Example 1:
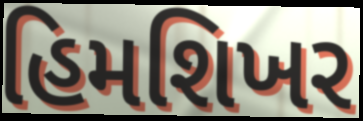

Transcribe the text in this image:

હિમશિખર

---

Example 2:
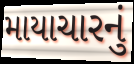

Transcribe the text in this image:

માયાચારનું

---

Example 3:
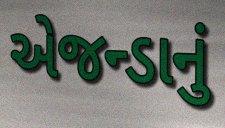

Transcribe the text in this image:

એજન્ડાનું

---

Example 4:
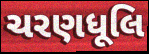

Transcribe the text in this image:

ચરણધૂલિ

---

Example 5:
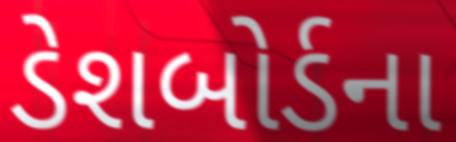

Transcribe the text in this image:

ડેશબોર્ડના